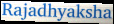
Rajadhyaksha